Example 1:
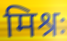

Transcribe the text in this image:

मिश्रः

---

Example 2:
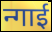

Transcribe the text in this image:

न्गाई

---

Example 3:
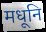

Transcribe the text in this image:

मधूनि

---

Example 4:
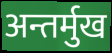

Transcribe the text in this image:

अन्तर्मुख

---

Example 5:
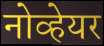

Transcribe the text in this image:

नोव्हेयर